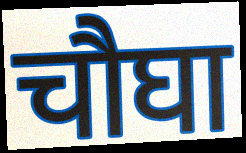
चौघा